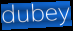
dubey